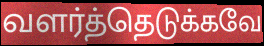
வளர்த்தெடுக்கவே